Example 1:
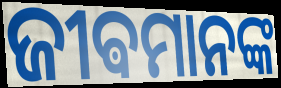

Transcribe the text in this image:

ଜୀଵମାନଙ୍କ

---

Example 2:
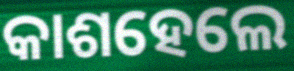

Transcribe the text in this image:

କାଶହେଲେ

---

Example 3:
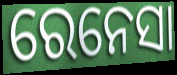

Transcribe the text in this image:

ରେନେସା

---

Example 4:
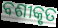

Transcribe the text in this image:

ବଶୀକୃତ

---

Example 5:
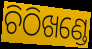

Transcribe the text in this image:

ଚିଠିଖଣ୍ଡେ